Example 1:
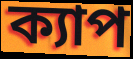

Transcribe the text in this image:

ক্যাপ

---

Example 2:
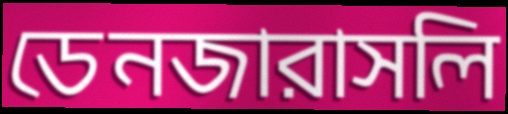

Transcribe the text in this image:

ডেনজারাসলি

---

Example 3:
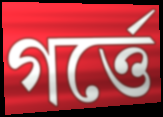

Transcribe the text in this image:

গর্ত্তে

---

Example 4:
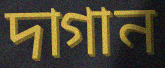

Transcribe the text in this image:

দাগান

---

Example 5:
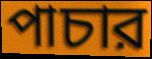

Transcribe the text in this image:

পাচার